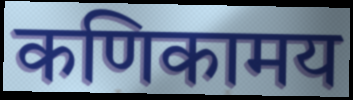
कणिकामय